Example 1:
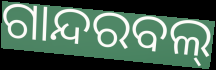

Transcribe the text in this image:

ଗାନ୍ଦରବଲ୍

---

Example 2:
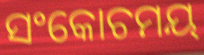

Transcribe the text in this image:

ସଂକୋଚମୟ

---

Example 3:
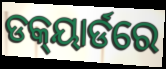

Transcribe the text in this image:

ଡକ୍‍ୟାର୍ଡରେ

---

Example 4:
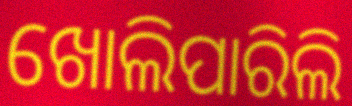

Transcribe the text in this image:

ଖୋଲିପାରିଲି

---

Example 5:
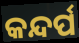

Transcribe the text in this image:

କନ୍ଦର୍ପ